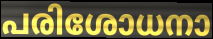
പരിശോധനാ